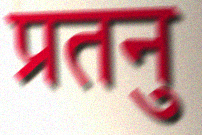
प्रतनु